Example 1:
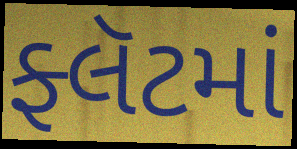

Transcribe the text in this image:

ફ્લૅટમાં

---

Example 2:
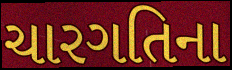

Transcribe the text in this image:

ચારગતિના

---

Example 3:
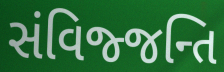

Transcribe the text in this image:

સંવિજ્જન્તિ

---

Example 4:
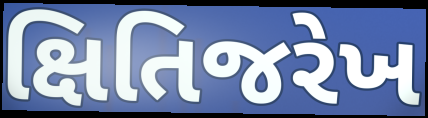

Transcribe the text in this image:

ક્ષિતિજરેખ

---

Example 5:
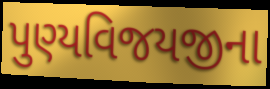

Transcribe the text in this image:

પુણ્યવિજયજીના